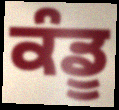
ਕੰਡੂ